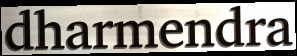
dharmendra